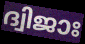
ദ്വിജാഃ